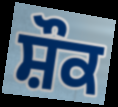
ਸ਼ੌਕ